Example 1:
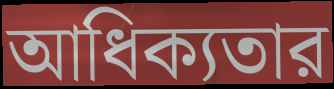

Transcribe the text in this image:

আধিক্যতার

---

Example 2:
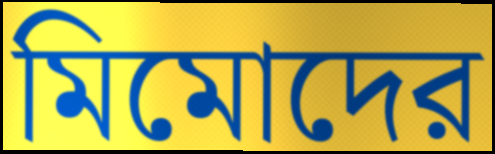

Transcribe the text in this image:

মিমোদের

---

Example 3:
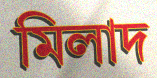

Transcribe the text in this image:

মিলাদ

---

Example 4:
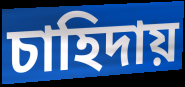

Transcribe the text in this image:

চাহিদায়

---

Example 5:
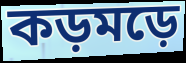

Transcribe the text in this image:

কড়মড়ে